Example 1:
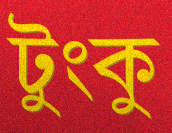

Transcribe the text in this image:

টুংকু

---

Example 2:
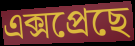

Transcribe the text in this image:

এক্সপ্ৰেছে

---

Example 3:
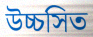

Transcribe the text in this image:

উচ্চসিত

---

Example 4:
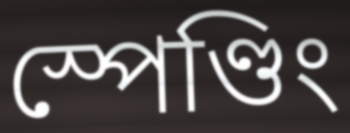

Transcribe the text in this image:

স্পেণ্ডিং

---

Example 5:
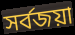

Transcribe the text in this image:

সৰ্বজয়া